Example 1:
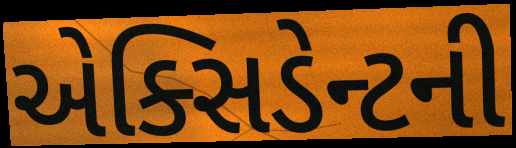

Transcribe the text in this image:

એક્સિડેન્ટની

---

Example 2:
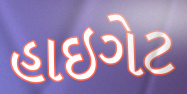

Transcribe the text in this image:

હાઇગેટ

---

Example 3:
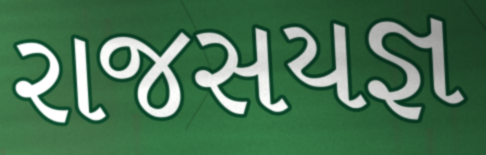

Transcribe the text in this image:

રાજસયજ્ઞ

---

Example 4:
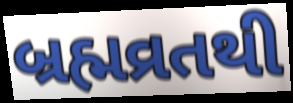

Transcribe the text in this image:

બ્રહ્મવ્રતથી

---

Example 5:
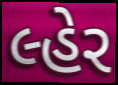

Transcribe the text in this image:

લ્હેર